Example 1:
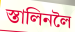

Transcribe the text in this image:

স্তালিনলৈ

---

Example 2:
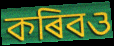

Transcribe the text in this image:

কৰিবও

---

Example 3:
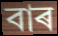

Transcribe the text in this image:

বাৰ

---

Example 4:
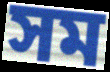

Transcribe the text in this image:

সম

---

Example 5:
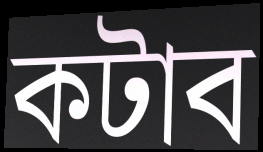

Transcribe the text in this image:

কটাব